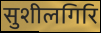
सुशीलगिरि